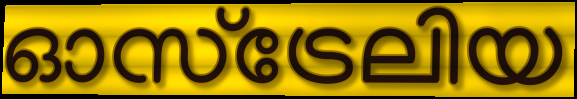
ഓസ്ട്രേലിയ